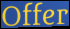
Offer